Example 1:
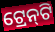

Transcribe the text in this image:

ଟ୍ରେନ୍‌ଟି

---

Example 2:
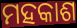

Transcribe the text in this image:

ମହକାଶ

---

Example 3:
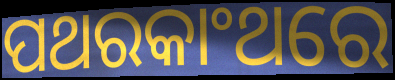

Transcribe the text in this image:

ପଥରକାଂଥରେ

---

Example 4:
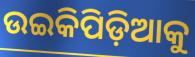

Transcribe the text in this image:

ଉଇକିପିଡ଼ିଆକୁ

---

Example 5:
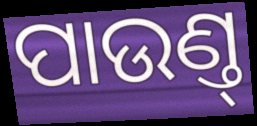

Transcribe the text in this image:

ପାଉଣ୍ତ୍